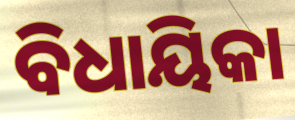
ବିଧାୟିକା